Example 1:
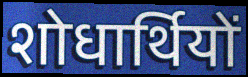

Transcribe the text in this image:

शोधार्थियों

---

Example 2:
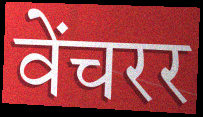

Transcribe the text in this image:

वेंचरर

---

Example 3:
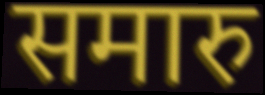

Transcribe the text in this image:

समारु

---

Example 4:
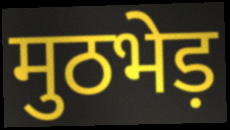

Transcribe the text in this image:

मुठभेड़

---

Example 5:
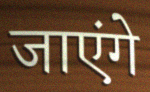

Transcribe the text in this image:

जाएंगे